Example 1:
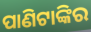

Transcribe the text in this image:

ପାଣିଟାଙ୍କିର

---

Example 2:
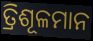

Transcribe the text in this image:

ତ୍ରିଶୂଳମାନ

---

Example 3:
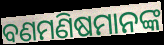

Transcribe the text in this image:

ବଣମଣିଷମାନଙ୍କ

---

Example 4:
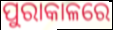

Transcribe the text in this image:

ପୁରାକାଳରେ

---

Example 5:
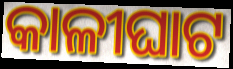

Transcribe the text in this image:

କାଳୀଘାଟ